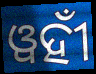
ୱହୀଁ